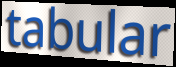
tabular